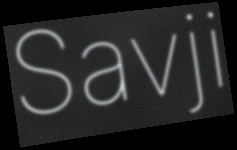
Savji